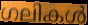
ഗലികൾ